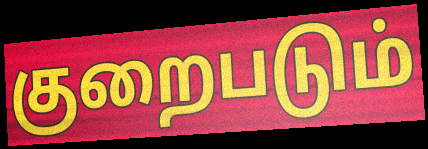
குறைபடும்